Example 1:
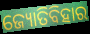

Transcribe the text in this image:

ଜ୍ୟୋତିବିହାର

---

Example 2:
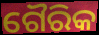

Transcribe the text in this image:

ଗୈରିକ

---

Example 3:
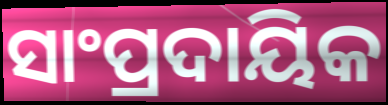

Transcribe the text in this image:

ସାଂପ୍ରଦାୟିକ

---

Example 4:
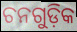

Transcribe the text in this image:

ଚନଗୁଡ଼ିକ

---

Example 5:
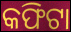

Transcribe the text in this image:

କଫିଟା